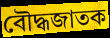
বৌদ্ধজাতক